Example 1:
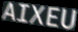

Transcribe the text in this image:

AIXEU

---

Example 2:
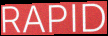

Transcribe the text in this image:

RAPID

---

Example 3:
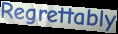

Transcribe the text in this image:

Regrettably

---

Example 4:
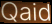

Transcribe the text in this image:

Qaid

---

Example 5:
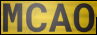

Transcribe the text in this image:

MCAO